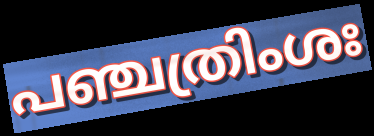
പഞ്ചത്രിംശഃ